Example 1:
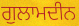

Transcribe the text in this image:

ਗੁਲਾਮਦੀਨ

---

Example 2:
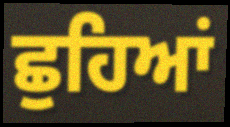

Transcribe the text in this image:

ਛੁਹਿਆਂ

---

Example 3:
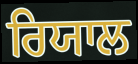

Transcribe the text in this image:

ਰਿਯਾਲ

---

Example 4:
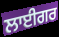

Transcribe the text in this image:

ਲਾਈਗਰ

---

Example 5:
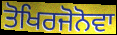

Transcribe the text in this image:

ਤੋਖਿਰਜੋਨੋਵਾ